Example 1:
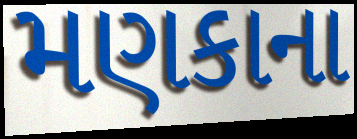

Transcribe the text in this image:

મણકાના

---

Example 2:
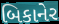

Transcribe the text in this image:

બિકાનેર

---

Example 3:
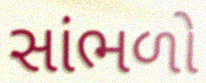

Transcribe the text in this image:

સાંભળો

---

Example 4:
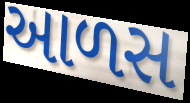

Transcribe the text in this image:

આળસ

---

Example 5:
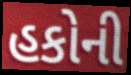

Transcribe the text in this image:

હકોની